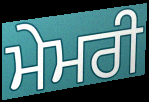
ਮੇਮਰੀ